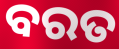
ବରତ